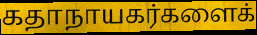
கதாநாயகர்களைக்